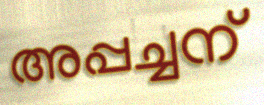
അപ്പച്ചന്